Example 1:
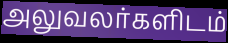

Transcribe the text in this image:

அலுவலர்களிடம்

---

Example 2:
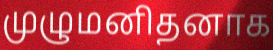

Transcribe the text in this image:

முழுமனிதனாக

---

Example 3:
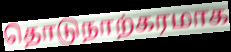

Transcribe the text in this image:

தொடுநாற்கரமாக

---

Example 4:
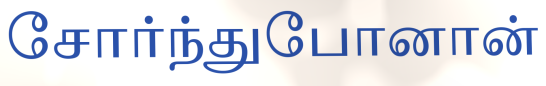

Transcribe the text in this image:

சோர்ந்துபோனான்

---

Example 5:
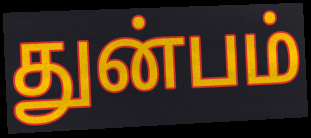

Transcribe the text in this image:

துன்பம்